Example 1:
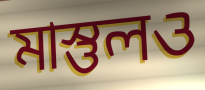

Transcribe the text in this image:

মাস্তুলও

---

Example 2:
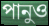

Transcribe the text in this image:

পানুও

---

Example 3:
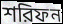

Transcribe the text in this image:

শরিফন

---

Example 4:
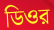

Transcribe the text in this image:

ডিওর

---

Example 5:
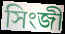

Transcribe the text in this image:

সিংজী